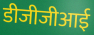
डीजीजीआई